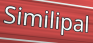
Similipal